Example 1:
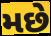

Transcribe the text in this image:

મછે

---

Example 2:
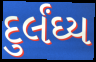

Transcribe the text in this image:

દુર્લંઘ્ય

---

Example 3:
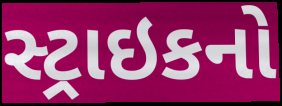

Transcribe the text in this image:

સ્ટ્રાઇકનો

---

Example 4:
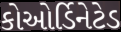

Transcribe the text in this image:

કોઓર્ડિનેટેડ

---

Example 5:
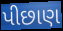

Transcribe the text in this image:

પીછાણ